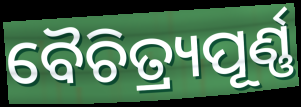
ବୈଚିତ୍ର୍ୟପୂର୍ଣ୍ଣ